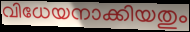
വിധേയനാക്കിയതും